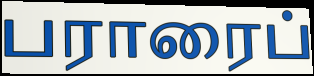
பராரைப்